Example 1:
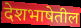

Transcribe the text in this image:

देशभाषेतील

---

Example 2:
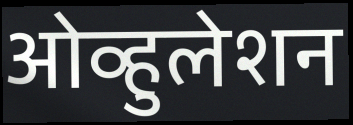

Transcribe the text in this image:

ओव्हुलेशन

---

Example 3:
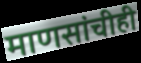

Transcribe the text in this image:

माणसांचीही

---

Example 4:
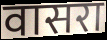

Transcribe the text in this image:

वासरा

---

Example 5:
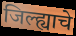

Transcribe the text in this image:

जिल्ह्याचे